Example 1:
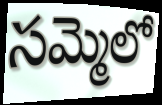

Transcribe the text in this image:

సమ్మెలో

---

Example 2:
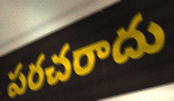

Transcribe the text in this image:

పరచరాదు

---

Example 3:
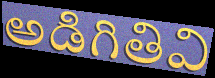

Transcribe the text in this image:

అడిగితివి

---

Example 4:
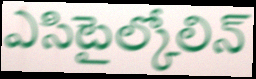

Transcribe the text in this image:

ఎసిటైల్కోలిన్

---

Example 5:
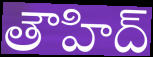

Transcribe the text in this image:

తౌహిద్